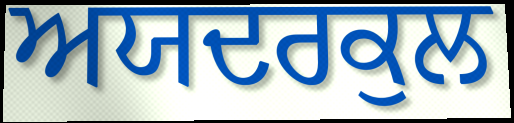
ਅਯਦਰਕੁਲ